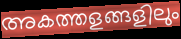
അകത്തളങ്ങളിലും